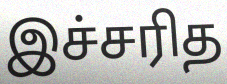
இச்சரித